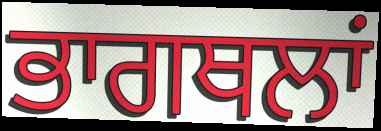
ਭਾਗਥਲਾਂ